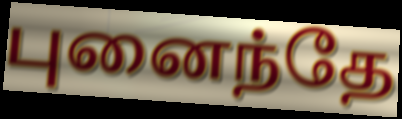
புனைந்தே